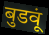
बुडवूं